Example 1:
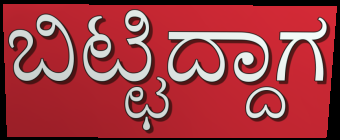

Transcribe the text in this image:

ಬಿಟ್ಟಿದ್ದಾಗ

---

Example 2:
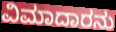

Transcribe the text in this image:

ವಿಮಾದಾರನು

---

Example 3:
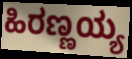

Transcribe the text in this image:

ಹಿರಣ್ಣಯ್ಯ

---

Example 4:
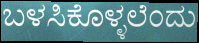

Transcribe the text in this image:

ಬಳಸಿಕೊಳ್ಳಲೆಂದು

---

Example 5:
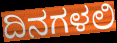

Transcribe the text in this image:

ದಿನಗಳಲಿ